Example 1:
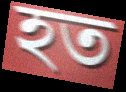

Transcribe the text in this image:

হত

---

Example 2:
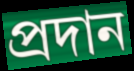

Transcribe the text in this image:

প্রদান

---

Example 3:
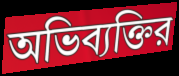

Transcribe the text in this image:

অভিব্যক্তির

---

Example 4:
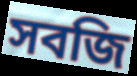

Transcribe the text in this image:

সবজি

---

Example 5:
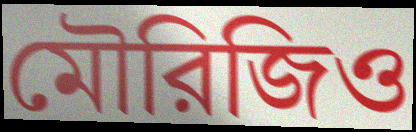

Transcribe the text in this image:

মৌরিজিও